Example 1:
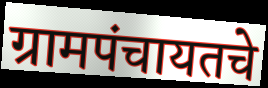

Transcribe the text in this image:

ग्रामपंचायतचे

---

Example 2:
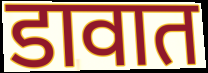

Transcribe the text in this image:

डावात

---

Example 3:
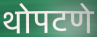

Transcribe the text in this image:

थोपटणे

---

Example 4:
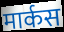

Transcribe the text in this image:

मार्कस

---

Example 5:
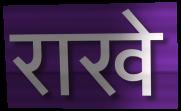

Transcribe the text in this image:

राखे